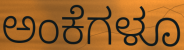
ಅಂಕೆಗಳೂ